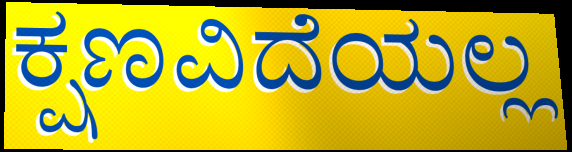
ಕ್ಷಣವಿದೆಯಲ್ಲ